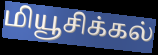
மியூசிக்கல்